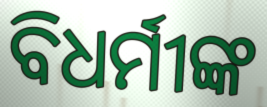
ବିଧର୍ମୀଙ୍କ